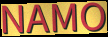
NAMO